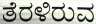
ತೆರಳಿರುವ